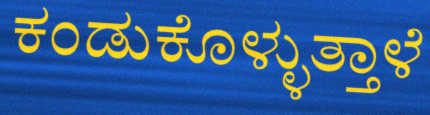
ಕಂಡುಕೊಳ್ಳುತ್ತಾಳೆ